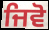
ਜਿਵੋ